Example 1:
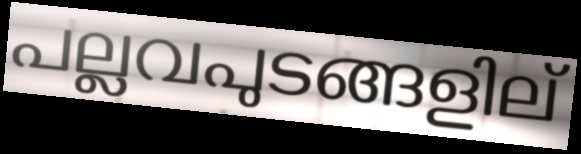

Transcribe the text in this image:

പല്ലവപുടങ്ങളില്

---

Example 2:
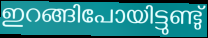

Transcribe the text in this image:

ഇറങ്ങിപോയിട്ടുണ്ടു്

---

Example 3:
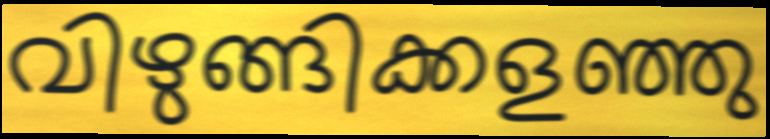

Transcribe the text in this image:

വിഴുങ്ങിക്കളഞ്ഞു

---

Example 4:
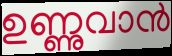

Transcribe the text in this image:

ഉണ്ണുവാൻ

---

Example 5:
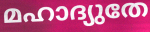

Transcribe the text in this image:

മഹാദ്യുതേ